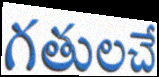
గతులచే